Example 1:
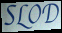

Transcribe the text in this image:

SLOD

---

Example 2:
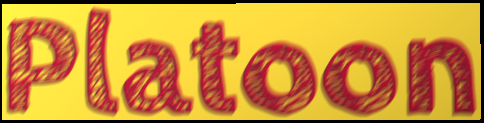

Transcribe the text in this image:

Platoon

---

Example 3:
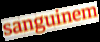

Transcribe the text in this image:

sanguinem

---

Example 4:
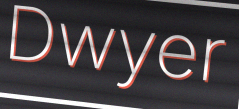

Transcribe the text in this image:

Dwyer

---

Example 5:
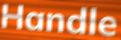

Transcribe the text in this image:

Handle